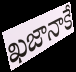
ఖజానాకే